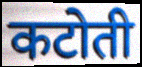
कटोती